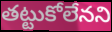
తట్టుకోలేనని